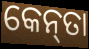
କେନ୍‌ତା